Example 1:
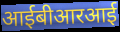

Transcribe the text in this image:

आईबीआरआई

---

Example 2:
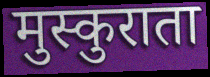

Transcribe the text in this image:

मुस्कुराता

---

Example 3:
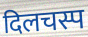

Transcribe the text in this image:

दिलचस्प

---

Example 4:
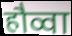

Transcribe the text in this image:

हौव्वा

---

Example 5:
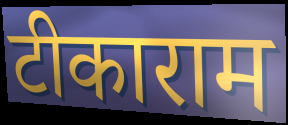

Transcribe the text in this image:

टीकाराम